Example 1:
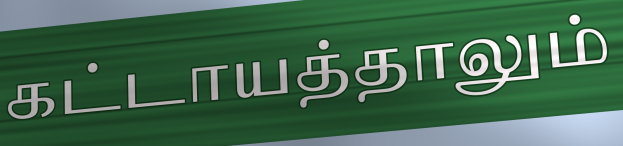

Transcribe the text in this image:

கட்டாயத்தாலும்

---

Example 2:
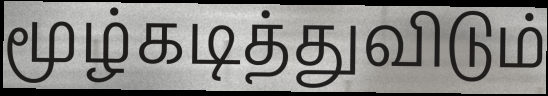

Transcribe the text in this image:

மூழ்கடித்துவிடும்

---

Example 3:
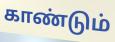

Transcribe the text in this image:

காண்டும்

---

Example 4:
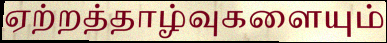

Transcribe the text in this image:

ஏற்றத்தாழ்வுகளையும்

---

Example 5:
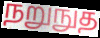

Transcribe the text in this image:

நறுநுத